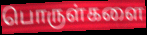
பொருள்களை